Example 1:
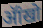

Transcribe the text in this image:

ऑंखो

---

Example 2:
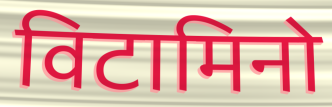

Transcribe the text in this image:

विटामिनो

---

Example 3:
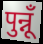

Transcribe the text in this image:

पुन्नूँ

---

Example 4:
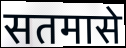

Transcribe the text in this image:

सतमासे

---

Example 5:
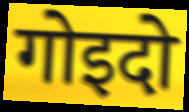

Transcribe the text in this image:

गोइदो